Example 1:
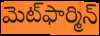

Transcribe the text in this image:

మెట్‌ఫార్మిన్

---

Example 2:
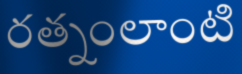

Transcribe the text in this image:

రత్నంలాంటి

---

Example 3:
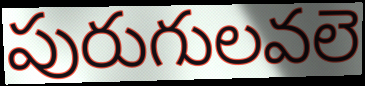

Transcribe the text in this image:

పురుగులవలె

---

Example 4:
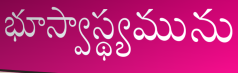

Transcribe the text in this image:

భూస్వాస్థ్యమును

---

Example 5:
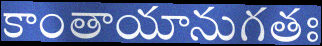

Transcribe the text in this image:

కాంతాయానుగతః